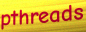
pthreads